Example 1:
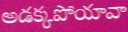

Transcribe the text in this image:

అడక్కపోయావా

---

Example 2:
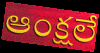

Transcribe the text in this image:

ఆంక్షలే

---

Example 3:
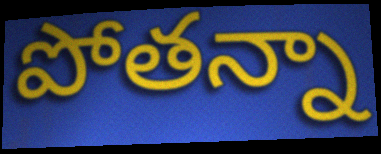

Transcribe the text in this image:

పోతన్నా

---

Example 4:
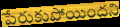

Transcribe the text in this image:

పేరుకుపోయిందని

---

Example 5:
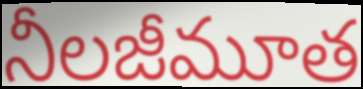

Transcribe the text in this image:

నీలజీమూత